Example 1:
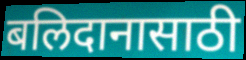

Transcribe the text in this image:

बलिदानासाठी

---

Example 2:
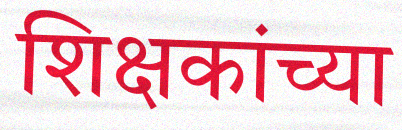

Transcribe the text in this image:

शिक्षकांच्‍या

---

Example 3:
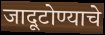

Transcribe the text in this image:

जादूटोण्याचे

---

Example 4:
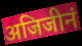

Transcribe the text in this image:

अजिजीनं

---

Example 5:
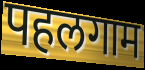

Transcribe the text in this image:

पहलगाम